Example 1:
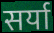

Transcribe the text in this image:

सर्या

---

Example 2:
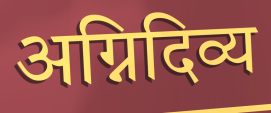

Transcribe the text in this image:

अग्निदिव्य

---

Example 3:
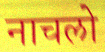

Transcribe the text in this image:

नाचलो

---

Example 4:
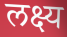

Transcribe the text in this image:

लक्ष्य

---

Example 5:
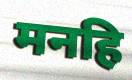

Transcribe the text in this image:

मनहि